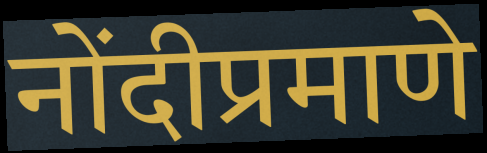
नोंदीप्रमाणे